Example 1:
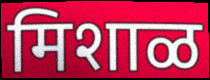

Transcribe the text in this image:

मिशाळ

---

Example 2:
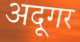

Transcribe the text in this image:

अदूगर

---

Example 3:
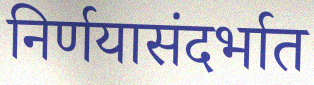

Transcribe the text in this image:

निर्णयासंदर्भात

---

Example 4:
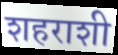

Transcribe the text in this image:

शहराशी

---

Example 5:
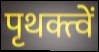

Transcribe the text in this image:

पृथक्त्वें